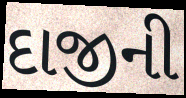
દાજીની